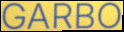
GARBO